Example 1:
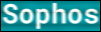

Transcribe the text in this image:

Sophos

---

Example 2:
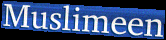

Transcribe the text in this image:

Muslimeen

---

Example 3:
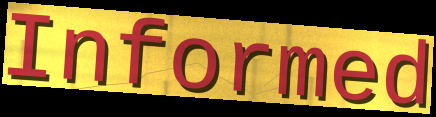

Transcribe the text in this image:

Informed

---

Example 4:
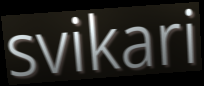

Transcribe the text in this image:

svikari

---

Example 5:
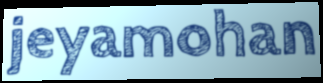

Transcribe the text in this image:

jeyamohan